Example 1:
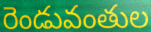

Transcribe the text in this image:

రెండువంతుల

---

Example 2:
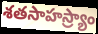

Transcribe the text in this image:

శతసాహస్ర్యాం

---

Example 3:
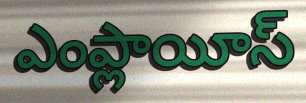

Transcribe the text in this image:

ఎంప్లాయీస్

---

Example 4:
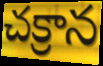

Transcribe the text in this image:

చక్రాన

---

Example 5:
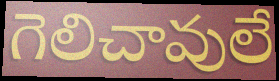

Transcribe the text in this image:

గెలిచావులే